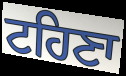
ਟਹਿਣਾ